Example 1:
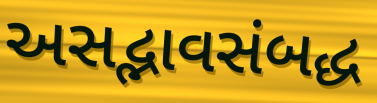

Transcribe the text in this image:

અસદ્ભાવસંબદ્ધ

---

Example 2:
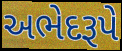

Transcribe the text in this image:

અભેદરૂપે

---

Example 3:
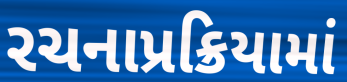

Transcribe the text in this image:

રચનાપ્રક્રિયામાં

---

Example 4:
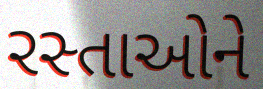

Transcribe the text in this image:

રસ્તાઓને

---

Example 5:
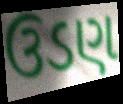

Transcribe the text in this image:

ઉડણ